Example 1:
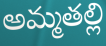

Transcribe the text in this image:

అమ్మతల్లి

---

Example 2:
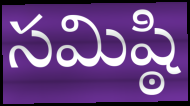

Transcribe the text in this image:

సమిష్ఠి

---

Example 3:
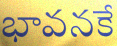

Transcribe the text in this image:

భావనకే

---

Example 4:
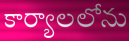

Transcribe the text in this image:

కార్యాలలోను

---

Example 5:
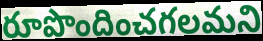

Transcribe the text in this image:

రూపొందించగలమని